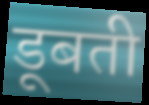
डूबती